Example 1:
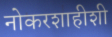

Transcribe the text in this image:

नोकरशाहीशी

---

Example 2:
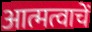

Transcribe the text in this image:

आत्मत्वाचें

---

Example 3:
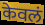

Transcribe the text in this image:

केवलं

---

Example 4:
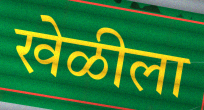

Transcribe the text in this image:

खेळीला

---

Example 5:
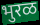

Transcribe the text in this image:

भुरळ